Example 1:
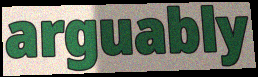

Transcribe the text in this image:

arguably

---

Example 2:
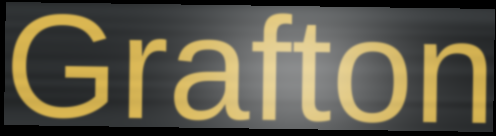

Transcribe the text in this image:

Grafton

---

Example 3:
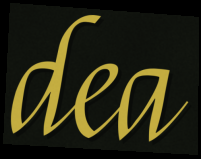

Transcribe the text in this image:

dea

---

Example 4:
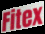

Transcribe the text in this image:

Fitex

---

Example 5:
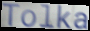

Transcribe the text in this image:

Tolka